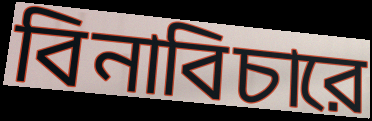
বিনাবিচারে